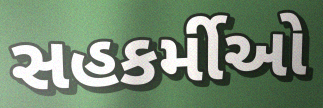
સહકર્મીઓ